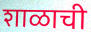
शाळाची